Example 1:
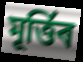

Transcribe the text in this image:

মূৰ্ত্তিৰ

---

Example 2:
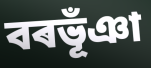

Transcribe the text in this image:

বৰভূঁঞা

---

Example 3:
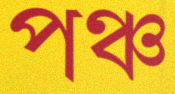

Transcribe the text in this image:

পঞ্চ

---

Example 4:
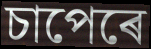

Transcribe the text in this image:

চাপেৰে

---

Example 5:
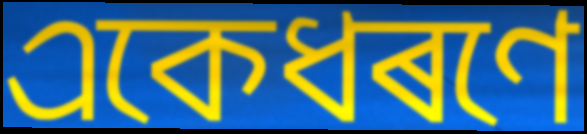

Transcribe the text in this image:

একেধৰণে